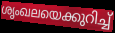
ശൃംഖലയെക്കുറിച്ച്